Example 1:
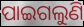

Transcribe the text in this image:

ପାଇଗଲୁଣି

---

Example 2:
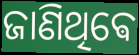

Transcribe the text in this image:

ଜାଣିଥିଵେ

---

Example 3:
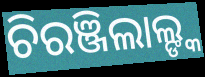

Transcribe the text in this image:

ଚିରଞ୍ଜିଲାଲ୍ଙ୍କ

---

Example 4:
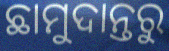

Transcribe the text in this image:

ଛାମୁଦାନ୍ତରୁ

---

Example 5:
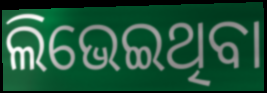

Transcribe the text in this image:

ଲିଭେଇଥିବା